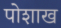
पोशाख